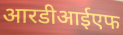
आरडीआईएफ